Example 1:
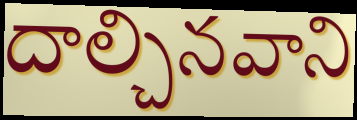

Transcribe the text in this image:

దాల్చినవాని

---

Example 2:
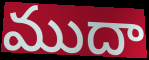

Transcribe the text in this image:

ముదా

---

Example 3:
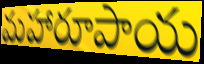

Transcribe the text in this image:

మహారూపాయ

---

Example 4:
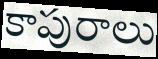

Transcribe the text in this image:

కాపురాలు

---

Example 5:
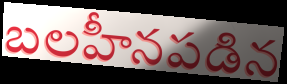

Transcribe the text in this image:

బలహీనపడిన